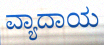
ವ್ಯಾದಾಯ